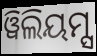
ୱିଲିୟମ୍ସ